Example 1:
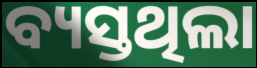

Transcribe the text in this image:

ବ୍ୟସ୍ତଥିଲା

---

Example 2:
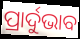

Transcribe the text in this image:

ପ୍ରାର୍ଦୁଭାବ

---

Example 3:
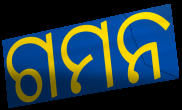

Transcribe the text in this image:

ଗମନ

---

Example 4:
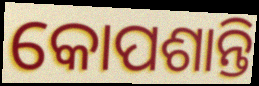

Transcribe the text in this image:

କୋପଶାନ୍ତି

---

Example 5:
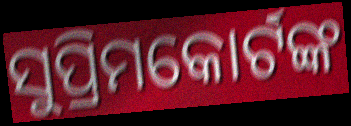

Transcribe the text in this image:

ସୁପ୍ରିମକୋର୍ଟଙ୍କ